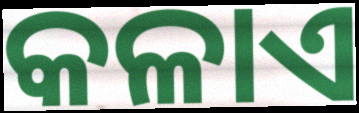
କଳାଏ